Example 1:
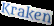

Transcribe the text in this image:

Kraken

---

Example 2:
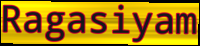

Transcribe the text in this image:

Ragasiyam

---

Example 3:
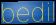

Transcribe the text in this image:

bedil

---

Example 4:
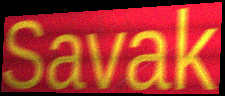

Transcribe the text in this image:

Savak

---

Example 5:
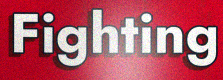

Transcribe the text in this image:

Fighting